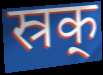
स्रक्